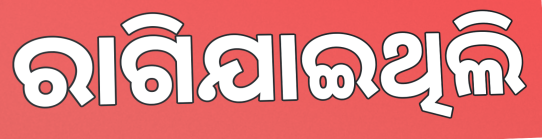
ରାଗିଯାଇଥିଲି